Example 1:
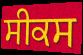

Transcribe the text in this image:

ਸੀਕਸ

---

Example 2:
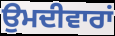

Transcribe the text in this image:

ਉਮਦੀਵਾਰਾਂ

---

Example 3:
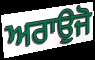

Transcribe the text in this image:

ਅਰਾਉਜੋ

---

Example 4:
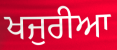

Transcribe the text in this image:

ਖਜੁਰੀਆ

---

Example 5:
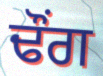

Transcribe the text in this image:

ਢੌਂਗ